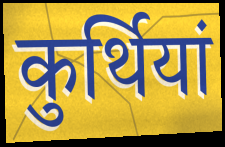
कुर्थियां